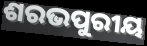
ଶରଭପୁରୀୟ